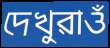
দেখুৱাওঁ